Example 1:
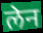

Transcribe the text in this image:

लेन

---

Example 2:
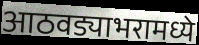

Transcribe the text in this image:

आठवड्याभरामध्ये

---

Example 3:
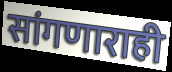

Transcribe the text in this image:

सांगणाराही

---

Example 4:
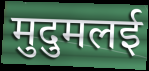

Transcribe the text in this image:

मुदुमलई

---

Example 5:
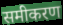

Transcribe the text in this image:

समीकरण